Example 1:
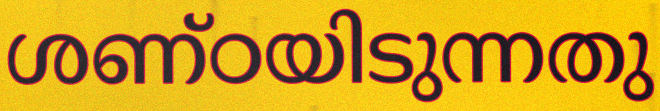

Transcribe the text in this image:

ശണ്ഠയിടുന്നതു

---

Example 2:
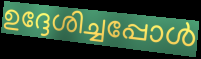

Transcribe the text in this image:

ഉദ്ദേശിച്ചപ്പോൾ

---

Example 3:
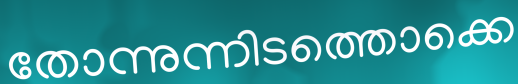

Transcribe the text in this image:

തോന്നുന്നിടത്തൊക്കെ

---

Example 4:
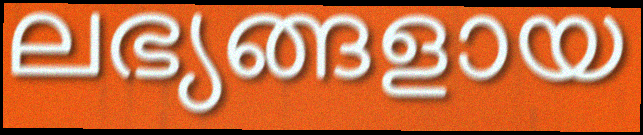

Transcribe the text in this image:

ലഭ്യങ്ങളായ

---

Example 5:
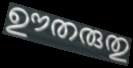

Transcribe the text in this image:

ഊതരുതു